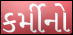
કર્મીનો